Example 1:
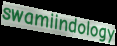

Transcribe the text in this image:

swamiindology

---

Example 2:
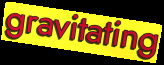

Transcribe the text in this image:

gravitating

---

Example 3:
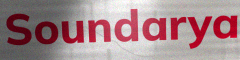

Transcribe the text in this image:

Soundarya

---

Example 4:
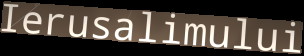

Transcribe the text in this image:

Ierusalimului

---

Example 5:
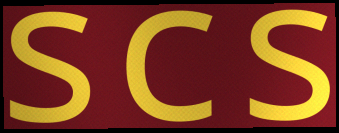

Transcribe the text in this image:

scs